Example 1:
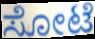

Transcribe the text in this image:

ಸೋಟೆ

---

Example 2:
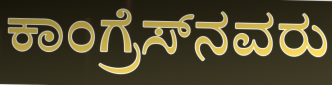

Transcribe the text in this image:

ಕಾಂಗ್ರೆಸ್‌ನವರು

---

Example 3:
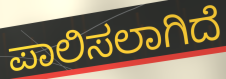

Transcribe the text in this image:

ಪಾಲಿಸಲಾಗಿದೆ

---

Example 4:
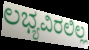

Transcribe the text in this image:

ಲಭ್ಯವಿರಲಿಲ್ಲ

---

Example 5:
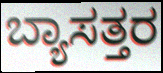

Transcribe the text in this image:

ಬ್ಯಾಸತ್ತರ